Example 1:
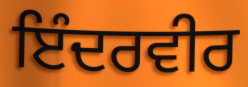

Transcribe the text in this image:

ਇੰਦਰਵੀਰ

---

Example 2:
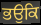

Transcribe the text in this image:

ਭਉਕਿ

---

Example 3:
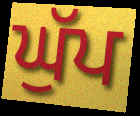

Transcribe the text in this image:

ਘੁੱਪ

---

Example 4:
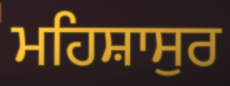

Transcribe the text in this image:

ਮਹਿਸ਼ਾਸੁਰ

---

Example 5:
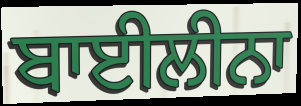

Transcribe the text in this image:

ਬਾਈਲੀਨਾ